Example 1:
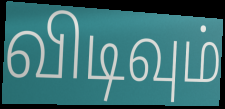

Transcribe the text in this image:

விடிவும்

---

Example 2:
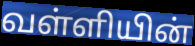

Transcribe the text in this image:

வள்ளியின்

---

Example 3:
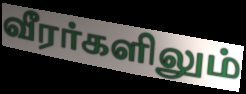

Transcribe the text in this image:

வீரர்களிலும்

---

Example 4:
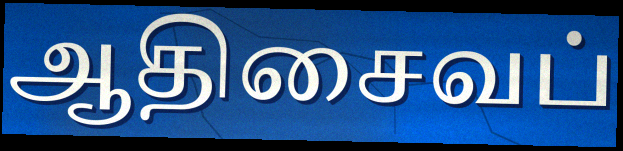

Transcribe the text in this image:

ஆதிசைவப்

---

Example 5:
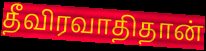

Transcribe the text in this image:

தீவிரவாதிதான்